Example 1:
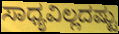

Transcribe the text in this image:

ಸಾಧ್ಯವಿಲ್ಲದಷ್ಟು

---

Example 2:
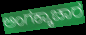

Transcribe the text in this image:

ಅಂಗಕ್ಕಾಚಾರ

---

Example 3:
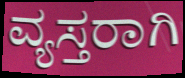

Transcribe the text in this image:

ವ್ಯಸ್ತರಾಗಿ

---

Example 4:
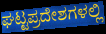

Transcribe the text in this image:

ಘಟ್ಟಪ್ರದೇಶಗಳಲ್ಲಿ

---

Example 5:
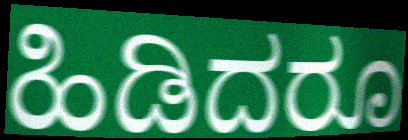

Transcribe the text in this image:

ಹಿಡಿದರೂ